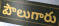
పౌలుగారు